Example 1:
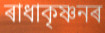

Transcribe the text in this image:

ৰাধাকৃষ্ণনৰ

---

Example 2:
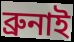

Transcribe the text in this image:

ব্ৰুনাই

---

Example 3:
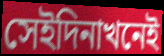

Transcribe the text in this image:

সেইদিনাখনেই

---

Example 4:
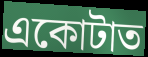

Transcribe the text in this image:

একোটাত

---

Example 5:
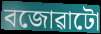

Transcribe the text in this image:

বজোৱাটো